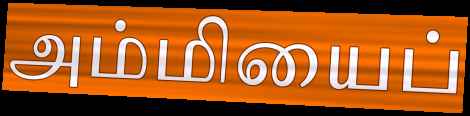
அம்மியைப்